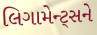
લિગામેન્ટ્સને